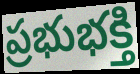
ప్రభుభక్తి